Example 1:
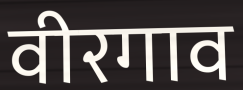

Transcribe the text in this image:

वीरगाव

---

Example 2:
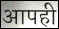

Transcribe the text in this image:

आपही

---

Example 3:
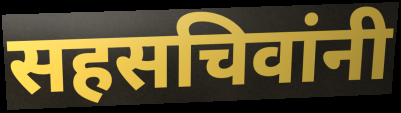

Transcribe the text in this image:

सहसचिवांनी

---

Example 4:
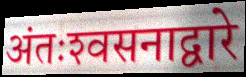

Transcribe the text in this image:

अंतःश्वसनाद्वारे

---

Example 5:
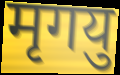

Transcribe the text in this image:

मृगयु